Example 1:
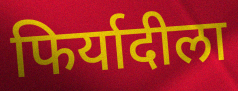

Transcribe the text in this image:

फिर्यादीला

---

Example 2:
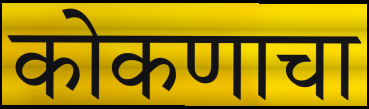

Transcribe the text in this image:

कोकणाचा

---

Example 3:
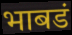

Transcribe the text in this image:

भाबडं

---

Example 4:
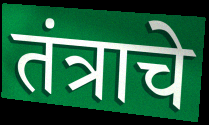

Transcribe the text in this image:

तंत्राचे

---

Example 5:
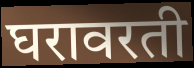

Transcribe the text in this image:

घरावरती